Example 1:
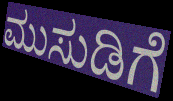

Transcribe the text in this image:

ಮುಸುಡಿಗೆ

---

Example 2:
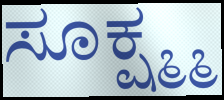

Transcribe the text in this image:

ಸೂಕ್ಷ್ಮ್ಮ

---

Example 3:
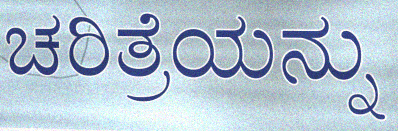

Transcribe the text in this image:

ಚರಿತ್ರೆಯನ್ನು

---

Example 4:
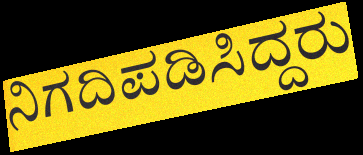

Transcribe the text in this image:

ನಿಗದಿಪಡಿಸಿದ್ದರು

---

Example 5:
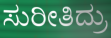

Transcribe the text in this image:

ಸುರೀತಿದ್ರು